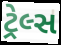
ટ્રેલ્સ